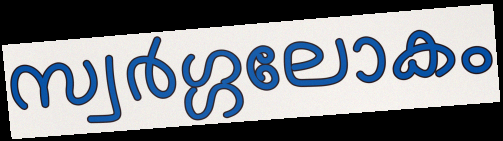
സ്വർഗ്ഗലോകം